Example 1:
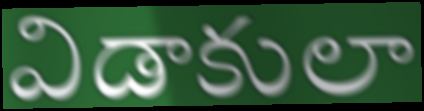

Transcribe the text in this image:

విడాకులా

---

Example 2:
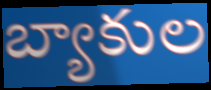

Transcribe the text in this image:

బ్యాకుల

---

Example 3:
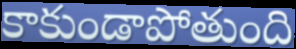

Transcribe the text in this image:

కాకుండాపోతుంది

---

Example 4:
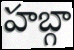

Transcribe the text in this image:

హబ్గా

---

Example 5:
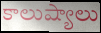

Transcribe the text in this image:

కాలుష్యాలు